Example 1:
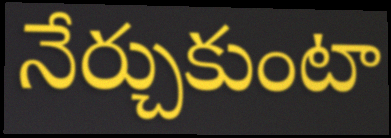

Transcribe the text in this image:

నేర్చుకుంటా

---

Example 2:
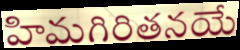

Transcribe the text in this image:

హిమగిరితనయే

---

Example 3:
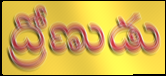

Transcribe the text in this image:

ద్రోణుడు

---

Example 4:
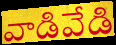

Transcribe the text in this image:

వాడివేడి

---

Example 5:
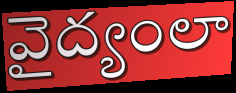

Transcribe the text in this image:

వైద్యంలా